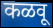
कळवू